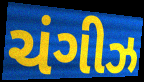
ચંગીઝ